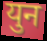
युन